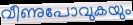
വീണുപോവുകയും